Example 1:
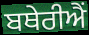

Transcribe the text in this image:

ਬਥੇਰੀਐਂ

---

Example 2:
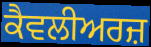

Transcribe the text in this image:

ਕੈਵਲੀਅਰਜ਼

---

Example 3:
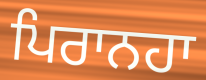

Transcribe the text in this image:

ਪਿਰਾਨਹਾ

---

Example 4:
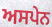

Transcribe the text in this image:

ਅਸਪੇਨ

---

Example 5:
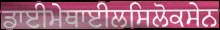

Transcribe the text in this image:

ਡਾਈਮੇਥਾਈਲਸਿਲੋਕਸੇਨ